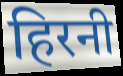
हिरनी